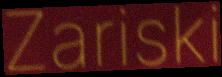
Zariski